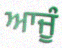
ਆਜੂੰ